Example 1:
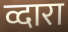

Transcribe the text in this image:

व्दारा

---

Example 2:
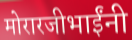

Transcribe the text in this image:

मोरारजीभाईंनी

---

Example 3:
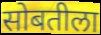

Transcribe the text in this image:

सोबतीला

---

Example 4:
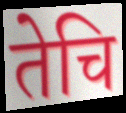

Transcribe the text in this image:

तेचि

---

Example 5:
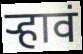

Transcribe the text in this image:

र्‍हावं